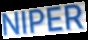
NIPER